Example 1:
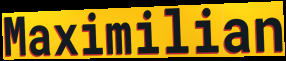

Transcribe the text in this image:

Maximilian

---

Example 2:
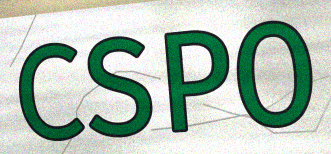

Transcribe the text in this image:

CSPO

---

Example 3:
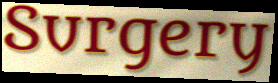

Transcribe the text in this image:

Surgery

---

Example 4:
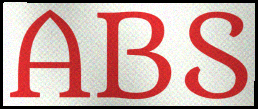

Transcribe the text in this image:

ABS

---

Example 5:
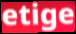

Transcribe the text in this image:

etige